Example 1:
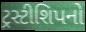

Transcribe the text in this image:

ટ્રસ્ટીશિપનો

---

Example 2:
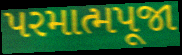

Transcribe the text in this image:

પરમાત્મપૂજા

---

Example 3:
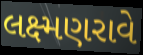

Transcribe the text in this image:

લક્ષ્મણરાવે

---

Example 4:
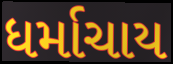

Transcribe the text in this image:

ધર્માચાય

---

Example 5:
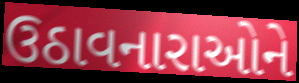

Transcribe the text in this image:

ઉઠાવનારાઓને